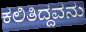
ಕಲಿತಿದ್ದವನು